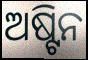
ଅଷ୍ଟିନ